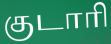
குடாரி